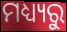
ମଧ୍ୟ୍ୟରୁ